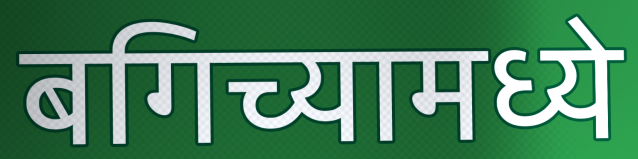
बगिच्यामध्ये